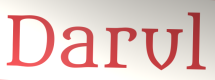
Darul